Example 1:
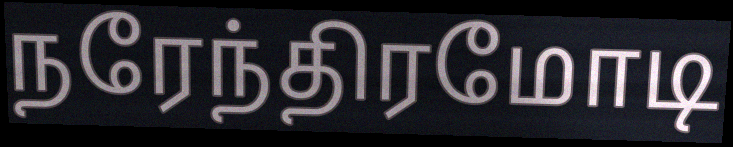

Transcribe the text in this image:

நரேந்திரமோடி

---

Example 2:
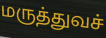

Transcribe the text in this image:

மருத்துவச்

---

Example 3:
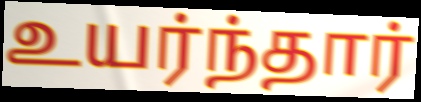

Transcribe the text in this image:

உயர்ந்தார்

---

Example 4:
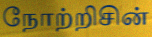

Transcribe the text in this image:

நோற்றிசின்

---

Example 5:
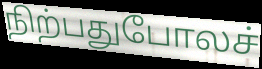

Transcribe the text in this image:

நிற்பதுபோலச்